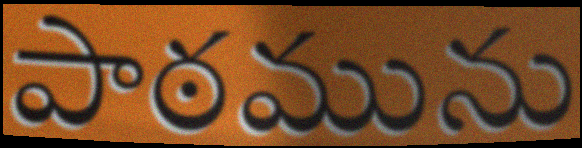
పాఠమును